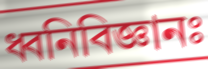
ধ্বনিবিজ্ঞানঃ